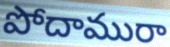
పోదామురా